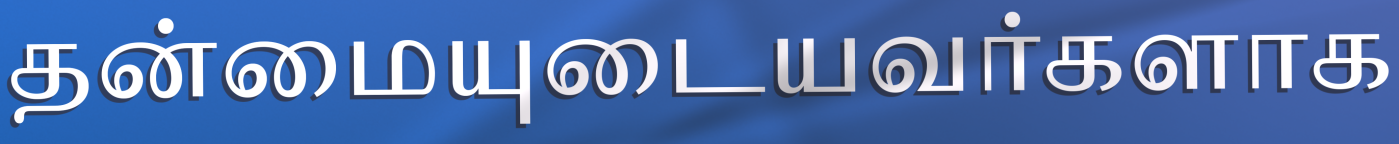
தன்மையுடையவர்களாக